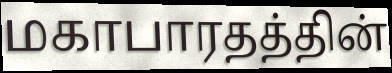
மகாபாரதத்தின்